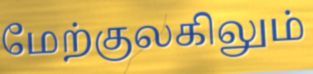
மேற்குலகிலும்